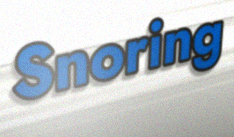
Snoring